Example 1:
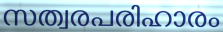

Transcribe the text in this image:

സത്വരപരിഹാരം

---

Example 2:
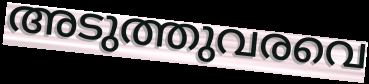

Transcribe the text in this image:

അടുത്തുവരവെ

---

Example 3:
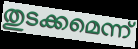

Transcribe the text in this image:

തുടക്കമെന്ന്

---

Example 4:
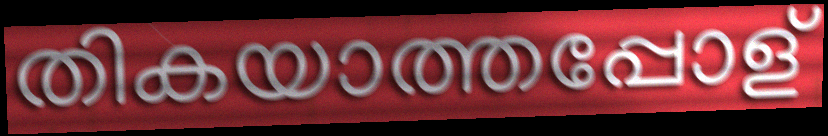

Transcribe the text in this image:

തികയാത്തപ്പോള്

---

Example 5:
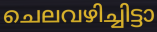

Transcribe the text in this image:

ചെലവഴിച്ചിട്ടാ